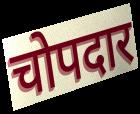
चोपदार